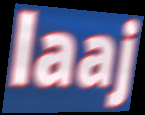
laaj